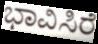
ಭಾವಿಸಿರೆ